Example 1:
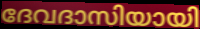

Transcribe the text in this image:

ദേവദാസിയായി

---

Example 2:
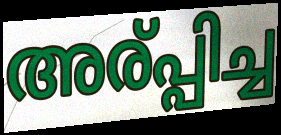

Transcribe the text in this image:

അര്പ്പിച്ച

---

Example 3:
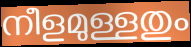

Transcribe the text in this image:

നീളമുള്ളതും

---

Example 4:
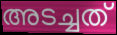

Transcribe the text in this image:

അടച്ചത്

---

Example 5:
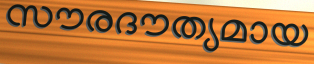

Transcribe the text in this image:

സൗരദൗത്യമായ